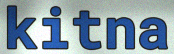
kitna